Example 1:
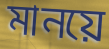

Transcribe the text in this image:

মানয়ে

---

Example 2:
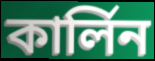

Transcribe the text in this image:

কার্লিন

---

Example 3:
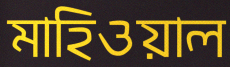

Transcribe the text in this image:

মাহিওয়াল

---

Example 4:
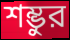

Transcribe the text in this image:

শম্ভুর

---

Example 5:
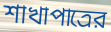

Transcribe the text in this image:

শাখাপাত্রের